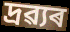
দ্ৰৱ্যৰ